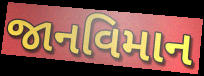
જાનવિમાન